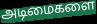
அடிமைகளை